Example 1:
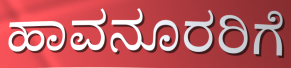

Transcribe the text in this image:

ಹಾವನೂರರಿಗೆ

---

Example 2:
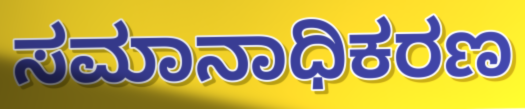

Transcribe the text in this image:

ಸಮಾನಾಧಿಕರಣ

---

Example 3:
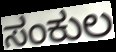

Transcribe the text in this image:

ಸಂಕುಲ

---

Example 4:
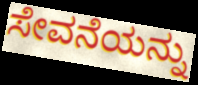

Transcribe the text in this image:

ಸೇವನೆಯನ್ನು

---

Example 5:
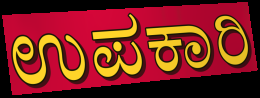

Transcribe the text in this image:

ಉಪಕಾರಿ